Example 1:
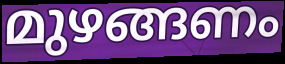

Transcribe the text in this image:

മുഴങ്ങണം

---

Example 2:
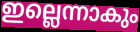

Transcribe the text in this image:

ഇല്ലെന്നാകും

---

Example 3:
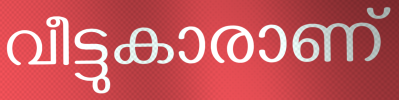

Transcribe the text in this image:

വീട്ടുകാരാണ്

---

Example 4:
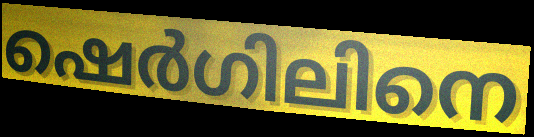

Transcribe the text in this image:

ഷെർഗിലിനെ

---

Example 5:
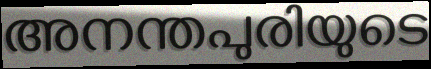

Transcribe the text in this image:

അനന്തപുരിയുടെ